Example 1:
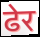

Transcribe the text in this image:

ढेर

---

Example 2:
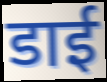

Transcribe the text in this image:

डाई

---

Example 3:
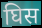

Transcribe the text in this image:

घिस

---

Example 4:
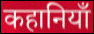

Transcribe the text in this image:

कहानियाँ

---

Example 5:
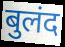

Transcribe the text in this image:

बुलंद